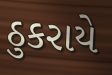
ઠુકરાયે